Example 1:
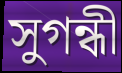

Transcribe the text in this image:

সুগন্ধী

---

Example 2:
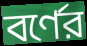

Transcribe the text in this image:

বর্ণের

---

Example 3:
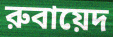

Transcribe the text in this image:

রুবায়েদ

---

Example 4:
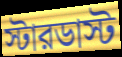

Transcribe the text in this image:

স্টারডাস্ট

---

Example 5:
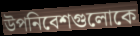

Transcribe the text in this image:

উপনিবেশগুলোকে